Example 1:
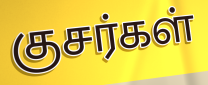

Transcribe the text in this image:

குசர்கள்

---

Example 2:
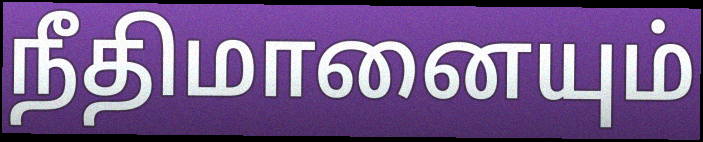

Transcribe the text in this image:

நீதிமானையும்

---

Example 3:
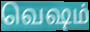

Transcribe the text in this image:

வெஷம்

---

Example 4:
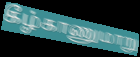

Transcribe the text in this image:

கீழ்காணுமாறு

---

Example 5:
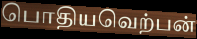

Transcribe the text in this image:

பொதியவெற்பன்